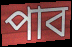
পাব